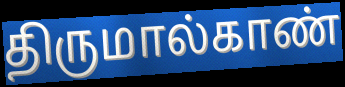
திருமால்காண்